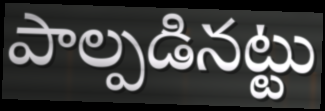
పాల్పడినట్టు